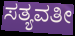
ಸತ್ಯವತೀ